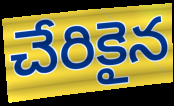
చేరికైన